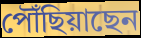
পৌঁছিয়াছেন